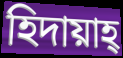
হিদায়াহ্